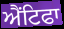
ਐਂਟਿਫਾ